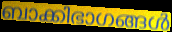
ബാക്കിഭാഗങ്ങൾ